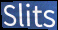
Slits